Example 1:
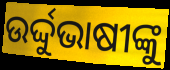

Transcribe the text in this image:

ଉର୍ଦ୍ଦୁଭାଷୀଙ୍କୁ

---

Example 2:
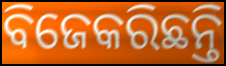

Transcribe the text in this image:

ବିଜେକରିଛନ୍ତି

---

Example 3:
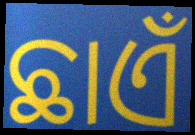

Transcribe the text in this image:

ଛାଏଁ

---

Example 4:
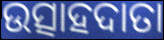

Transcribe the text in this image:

ଉତ୍ସାହଦାତା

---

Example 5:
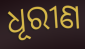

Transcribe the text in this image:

ଧୂରୀଣ